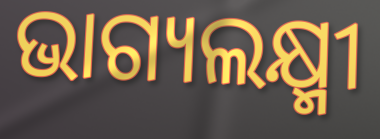
ଭାଗ୍ୟଲକ୍ଷ୍ମୀ